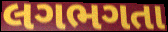
લગભગતા